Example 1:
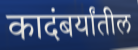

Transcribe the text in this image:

कादंबर्यांतील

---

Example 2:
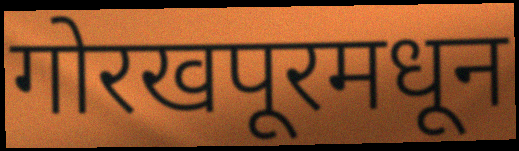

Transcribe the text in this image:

गोरखपूरमधून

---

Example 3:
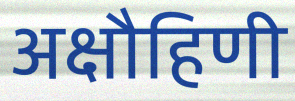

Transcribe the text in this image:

अक्षौहिणी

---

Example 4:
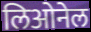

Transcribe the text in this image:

लिओनेल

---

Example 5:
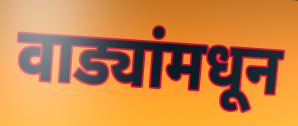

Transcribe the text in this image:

वाड्यांमधून